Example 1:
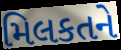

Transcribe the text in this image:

મિલકતને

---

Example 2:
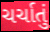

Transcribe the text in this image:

ચર્ચાતું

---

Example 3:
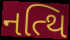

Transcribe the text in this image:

નત્થિ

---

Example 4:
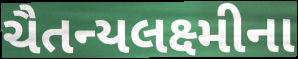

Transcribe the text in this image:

ચૈતન્યલક્ષ્મીના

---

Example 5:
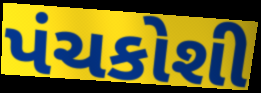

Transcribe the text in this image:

પંચકોશી